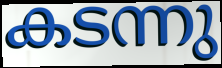
കടന്നു